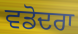
ਵਡੋਦਰਾ